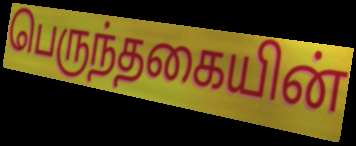
பெருந்தகையின்